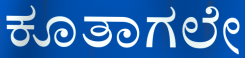
ಕೂತಾಗಲೇ